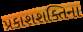
પ્રકાશશક્તિના